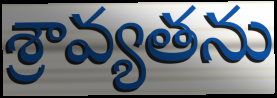
శ్రావ్యతను